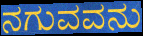
ನಗುವವನು